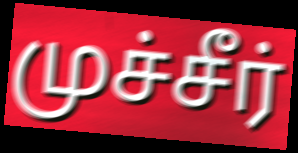
முச்சீர்